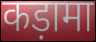
कड़ामा